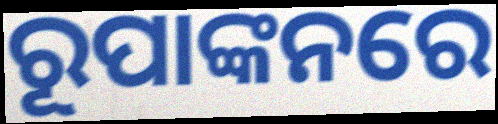
ରୂପାଙ୍କନରେ